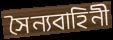
সৈন্যবাহিনী